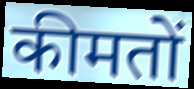
कीमतों